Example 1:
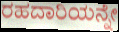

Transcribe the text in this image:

ರಹದಾರಿಯನ್ನೇ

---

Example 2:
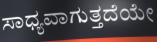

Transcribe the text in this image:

ಸಾಧ್ಯವಾಗುತ್ತದೆಯೇ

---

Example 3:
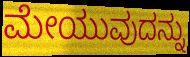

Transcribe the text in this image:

ಮೇಯುವುದನ್ನು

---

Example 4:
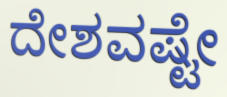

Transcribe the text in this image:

ದೇಶವಷ್ಟೇ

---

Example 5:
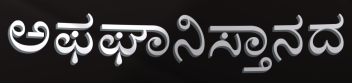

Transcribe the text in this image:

ಅಫಘಾನಿಸ್ತಾನದ